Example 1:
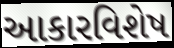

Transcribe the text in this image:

આકારવિશેષ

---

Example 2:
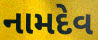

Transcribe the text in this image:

નામદેવ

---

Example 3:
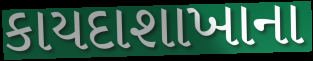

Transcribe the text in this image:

કાયદાશાખાના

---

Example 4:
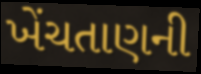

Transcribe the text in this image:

ખેંચતાણની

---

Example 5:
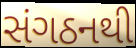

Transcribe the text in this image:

સંગઠનથી